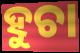
ହୁଚା